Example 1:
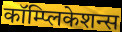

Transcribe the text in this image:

कॉम्प्लिकेशन्स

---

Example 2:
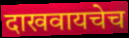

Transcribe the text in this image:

दाखवायचेच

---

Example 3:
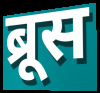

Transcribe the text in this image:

ब्रूस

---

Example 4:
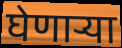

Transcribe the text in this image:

घेणाऱ्या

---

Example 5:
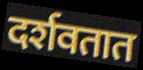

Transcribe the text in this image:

दर्शवतात